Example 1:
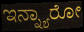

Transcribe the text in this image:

ಇನ್ನ್ಯಾರೋ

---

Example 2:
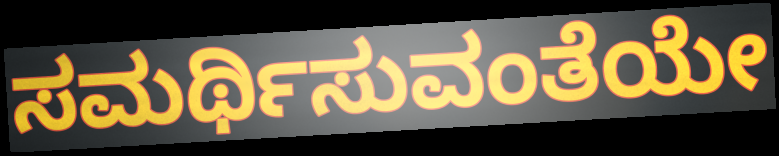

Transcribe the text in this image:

ಸಮರ್ಥಿಸುವಂತೆಯೇ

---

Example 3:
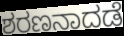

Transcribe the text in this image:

ಶರಣನಾದಡೆ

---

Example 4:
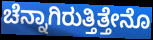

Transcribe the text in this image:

ಚೆನ್ನಾಗಿರುತ್ತಿತ್ತೇನೊ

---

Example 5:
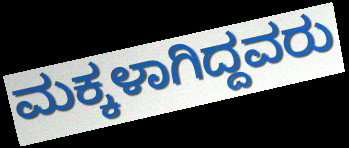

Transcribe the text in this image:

ಮಕ್ಕಳಾಗಿದ್ದವರು